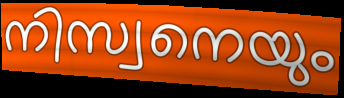
നിസ്വനെയും